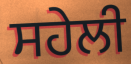
ਸਹੇਲੀ